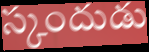
స్కందుడు